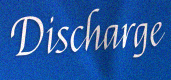
Discharge